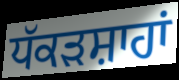
ਧੱਕੜਸ਼ਾਹਾਂ